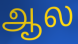
ஆல